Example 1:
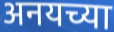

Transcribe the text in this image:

अनयच्या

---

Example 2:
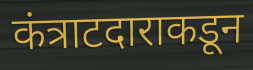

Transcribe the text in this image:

कंत्राटदाराकडून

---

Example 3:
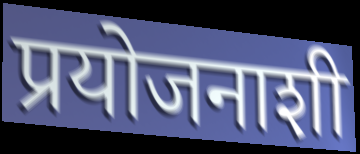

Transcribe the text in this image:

प्रयोजनाशी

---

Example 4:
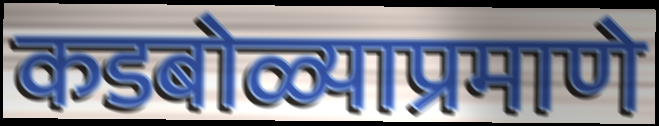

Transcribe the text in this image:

कडबोळ्याप्रमाणे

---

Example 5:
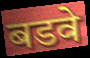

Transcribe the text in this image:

बडवे